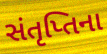
સંતૃપ્તિના